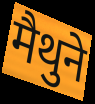
मैथुने